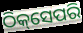
ଠିକ୍‌ସେପରି